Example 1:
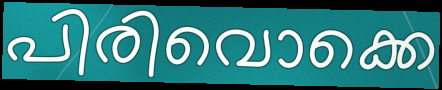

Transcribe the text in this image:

പിരിവൊക്കെ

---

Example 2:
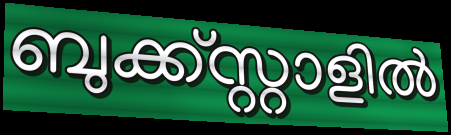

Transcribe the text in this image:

ബുക്ക്സ്റ്റാളിൽ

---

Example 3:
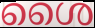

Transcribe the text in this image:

ശൈ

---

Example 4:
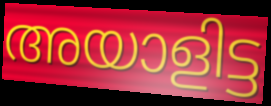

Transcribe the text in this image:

അയാളിട്ട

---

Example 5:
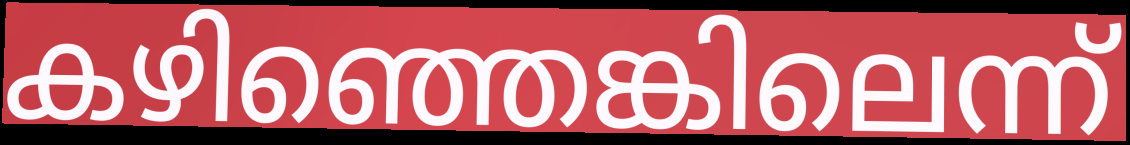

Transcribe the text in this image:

കഴിഞ്ഞെങ്കിലെന്ന്